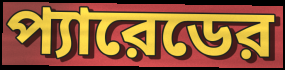
প্যারেডের